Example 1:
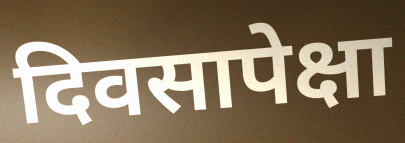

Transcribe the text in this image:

दिवसापेक्षा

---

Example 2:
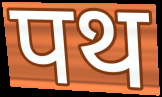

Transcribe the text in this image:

पथ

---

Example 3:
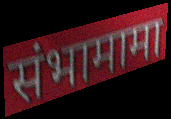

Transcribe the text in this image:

संभामामा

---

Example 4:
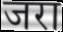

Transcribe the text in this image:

जरा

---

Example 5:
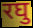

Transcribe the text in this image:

रघु